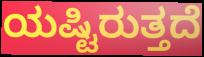
ಯಷ್ಟಿರುತ್ತದೆ